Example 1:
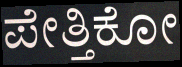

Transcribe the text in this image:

ಪೇತ್ತಿಕೋ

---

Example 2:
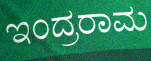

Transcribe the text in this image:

ಇಂದ್ರರಾಮ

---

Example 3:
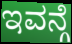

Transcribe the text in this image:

ಇವನ್ಗೆ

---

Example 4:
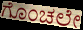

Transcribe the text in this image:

ಗೊಂಚಲೇ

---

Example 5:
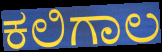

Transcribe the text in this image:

ಕಲಿಗಾಲ